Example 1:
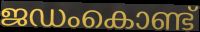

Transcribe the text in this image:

ജഡംകൊണ്ട്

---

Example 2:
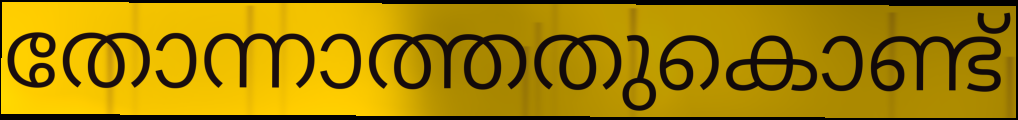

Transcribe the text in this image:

തോന്നാത്തതുകൊണ്ട്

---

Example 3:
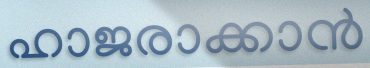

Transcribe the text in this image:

ഹാജരാക്കാൻ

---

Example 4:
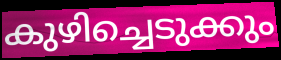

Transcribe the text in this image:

കുഴിച്ചെടുക്കും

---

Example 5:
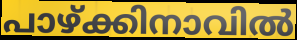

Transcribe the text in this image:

പാഴ്ക്കിനാവിൽ